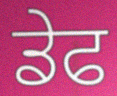
ਡੇਫ